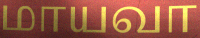
மாயவா